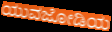
ಯುವಜೋಡಿಯ